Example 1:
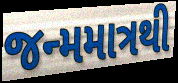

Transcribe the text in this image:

જન્મમાત્રથી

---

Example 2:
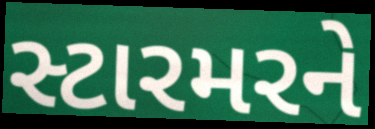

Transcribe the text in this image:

સ્ટારમરને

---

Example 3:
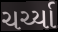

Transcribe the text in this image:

ચર્ચ્યા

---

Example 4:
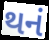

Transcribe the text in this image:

થનં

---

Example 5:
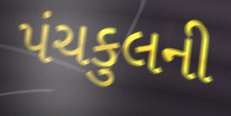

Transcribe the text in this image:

પંચકુલની